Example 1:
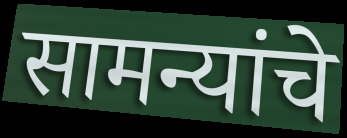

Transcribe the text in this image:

सामन्यांचे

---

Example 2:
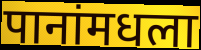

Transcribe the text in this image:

पानांमधला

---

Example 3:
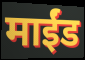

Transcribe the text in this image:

माईंड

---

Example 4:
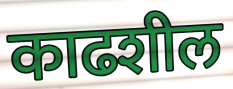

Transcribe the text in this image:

काढशील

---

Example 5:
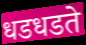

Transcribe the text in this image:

धडधडते